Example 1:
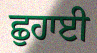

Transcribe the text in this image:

ਛੁਹਾਈ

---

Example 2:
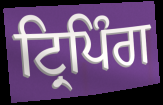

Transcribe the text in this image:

ਟ੍ਰਿਪਿੰਗ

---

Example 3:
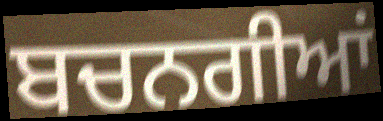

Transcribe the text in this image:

ਬਚਨਗੀਆਂ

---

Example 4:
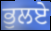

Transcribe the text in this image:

ਭੁਲਏ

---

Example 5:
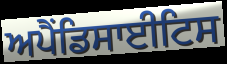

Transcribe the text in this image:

ਅਪੈਂਡਿਸਾਈਟਿਸ